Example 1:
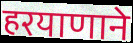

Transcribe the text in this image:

हरयाणाने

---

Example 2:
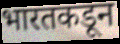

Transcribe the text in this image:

भारतकडून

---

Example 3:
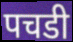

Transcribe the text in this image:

पचडी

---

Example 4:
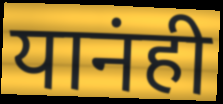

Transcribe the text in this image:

यानंही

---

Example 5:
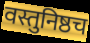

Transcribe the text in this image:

वस्तुनिष्ठच